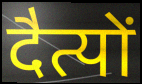
दैत्यों